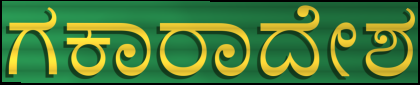
ಗಕಾರಾದೇಶ